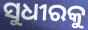
ସୁଧୀରକୁ